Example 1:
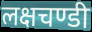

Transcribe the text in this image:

लक्षचण्डी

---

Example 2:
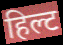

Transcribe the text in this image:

हिल्ट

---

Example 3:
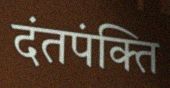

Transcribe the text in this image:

दंतपंक्ति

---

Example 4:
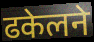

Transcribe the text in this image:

ढकेलने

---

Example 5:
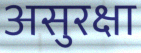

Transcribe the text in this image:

असुरक्षा